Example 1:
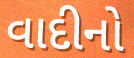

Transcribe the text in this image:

વાદીનો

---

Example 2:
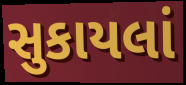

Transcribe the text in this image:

સુકાયલાં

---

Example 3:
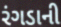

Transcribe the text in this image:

રંગડાની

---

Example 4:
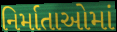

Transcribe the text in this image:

નિર્માતાઓમાં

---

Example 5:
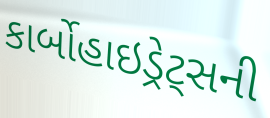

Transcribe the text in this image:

કાર્બોહાઇડ્રેટ્સની